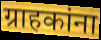
ग्राहकांना